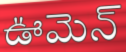
ఊమెన్